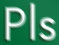
Pls